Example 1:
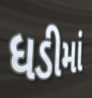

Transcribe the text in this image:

ધડીમાં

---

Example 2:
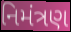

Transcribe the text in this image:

નિમંત્રણ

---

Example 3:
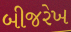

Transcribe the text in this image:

બીજરેખ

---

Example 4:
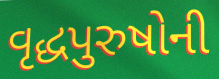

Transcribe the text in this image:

વૃદ્ધપુરુષોની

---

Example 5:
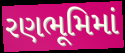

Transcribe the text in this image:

રણભૂમિમાં